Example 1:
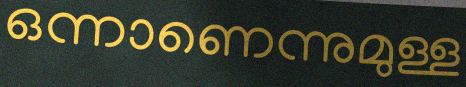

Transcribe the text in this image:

ഒന്നാണെന്നുമുള്ള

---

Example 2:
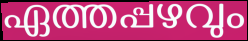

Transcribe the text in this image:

ഏത്തപ്പഴവും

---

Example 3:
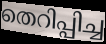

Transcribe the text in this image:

തെറിപ്പിച്ച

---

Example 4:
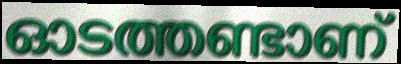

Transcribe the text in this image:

ഓടത്തണ്ടാണ്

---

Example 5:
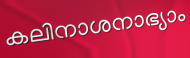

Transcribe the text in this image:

കലിനാശനാഭ്യാം